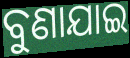
ବୁଣାଯାଇ